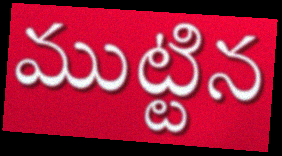
ముట్టిన